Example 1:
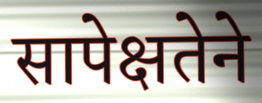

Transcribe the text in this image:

सापेक्षतेने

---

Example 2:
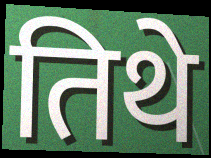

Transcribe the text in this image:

तिथे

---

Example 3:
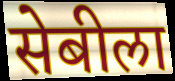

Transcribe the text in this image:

सेबीला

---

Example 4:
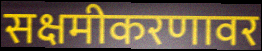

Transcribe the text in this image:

सक्षमीकरणावर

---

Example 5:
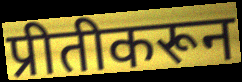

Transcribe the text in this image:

प्रीतीकरून